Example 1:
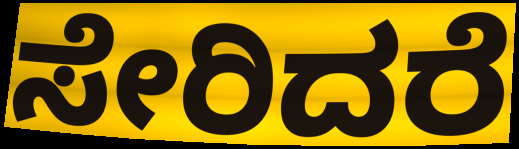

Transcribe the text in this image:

ಸೇರಿದರೆ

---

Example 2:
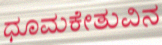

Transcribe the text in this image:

ಧೂಮಕೇತುವಿನ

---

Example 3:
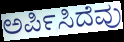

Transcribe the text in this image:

ಅರ್ಪಿಸಿದೆವು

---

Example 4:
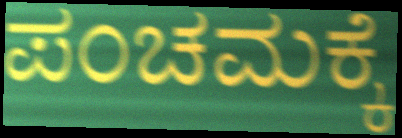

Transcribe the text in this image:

ಪಂಚಮಕ್ಕೆ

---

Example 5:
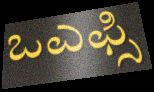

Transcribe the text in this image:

ಒಎಫ್ಸಿ